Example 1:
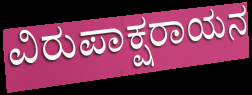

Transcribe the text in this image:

ವಿರುಪಾಕ್ಷರಾಯನ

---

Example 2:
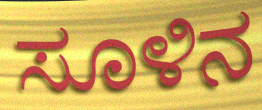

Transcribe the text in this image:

ಸೂಳಿನ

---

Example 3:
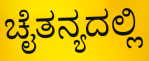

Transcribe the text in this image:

ಚೈತನ್ಯದಲ್ಲಿ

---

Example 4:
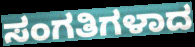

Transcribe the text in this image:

ಸಂಗತಿಗಳಾದ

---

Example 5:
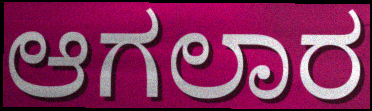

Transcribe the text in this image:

ಆಗಲಾರ